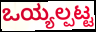
ಒಯ್ಯಲ್ಪಟ್ಟ